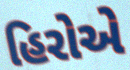
હિરોએ